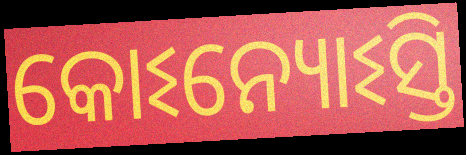
କୋଽନ୍ୟୋଽସ୍ତି